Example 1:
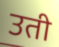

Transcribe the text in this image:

उती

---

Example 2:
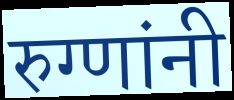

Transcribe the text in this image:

रुग्णांनी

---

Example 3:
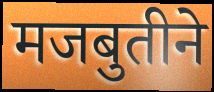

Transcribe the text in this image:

मजबुतीने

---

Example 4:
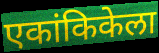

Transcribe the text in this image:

एकांकिकेला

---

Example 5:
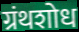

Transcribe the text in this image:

ग्रंथशोध